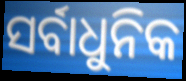
ସର୍ବାଧୁନିକ